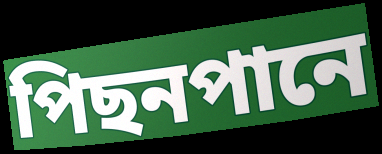
পিছনপানে